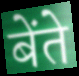
बेंते